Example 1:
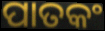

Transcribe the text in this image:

ପାତକଂ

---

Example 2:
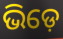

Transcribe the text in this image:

ଭିଡ଼େ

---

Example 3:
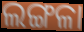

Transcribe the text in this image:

ଲଙ୍ଗଳା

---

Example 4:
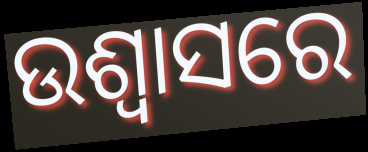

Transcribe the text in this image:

ଉଶ୍ଵାସରେ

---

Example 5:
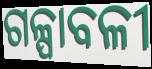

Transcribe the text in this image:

ଗଳ୍ପାବଳୀ